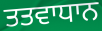
ਤਤਵਾਧਾਨ